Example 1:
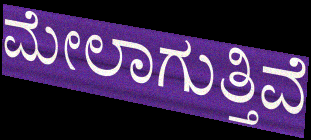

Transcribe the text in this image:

ಮೇಲಾಗುತ್ತಿವೆ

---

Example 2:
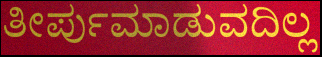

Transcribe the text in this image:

ತೀರ್ಪುಮಾಡುವದಿಲ್ಲ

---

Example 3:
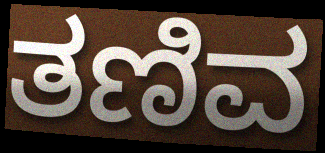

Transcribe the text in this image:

ತಣಿವ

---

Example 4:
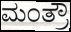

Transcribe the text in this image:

ಮಂತ್ರೌ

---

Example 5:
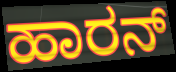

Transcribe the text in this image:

ಹಾರನ್